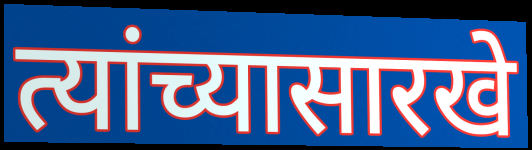
त्यांच्यासारखे